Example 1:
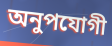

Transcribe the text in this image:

অনুপযোগী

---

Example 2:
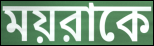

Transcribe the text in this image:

ময়রাকে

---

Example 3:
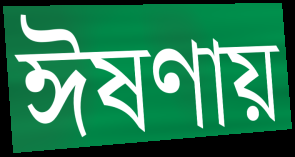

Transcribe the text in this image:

ঈষণায়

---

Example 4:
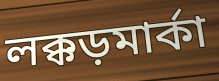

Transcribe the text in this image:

লক্কড়মার্কা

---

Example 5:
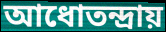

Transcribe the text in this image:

আধোতন্দ্রায়